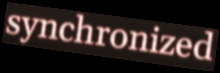
synchronized